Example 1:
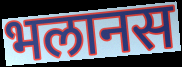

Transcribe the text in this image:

भलानस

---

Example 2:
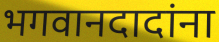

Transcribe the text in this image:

भगवानदादांना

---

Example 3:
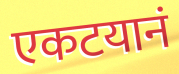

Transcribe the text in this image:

एकटयानं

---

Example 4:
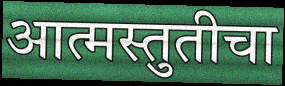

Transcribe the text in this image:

आत्मस्तुतीचा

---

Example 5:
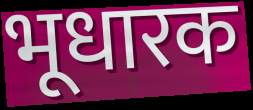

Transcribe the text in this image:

भूधारक